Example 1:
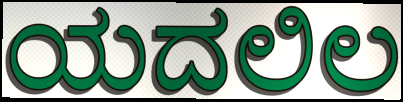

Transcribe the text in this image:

ಯದಲಿಲ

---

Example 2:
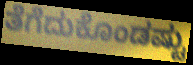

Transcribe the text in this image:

ತೆಗೆದುಕೊಂಡಷ್ಟು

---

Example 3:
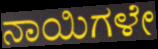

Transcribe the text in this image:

ನಾಯಿಗಳೇ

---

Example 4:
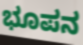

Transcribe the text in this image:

ಭೂಪನ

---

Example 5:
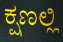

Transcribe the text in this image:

ಕ್ಷಣಲ್ಲಿ